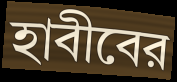
হাবীবের